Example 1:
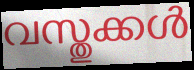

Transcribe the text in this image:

വസ്തുക്കൾ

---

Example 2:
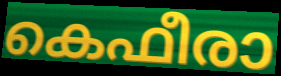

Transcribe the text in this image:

കെഫീരാ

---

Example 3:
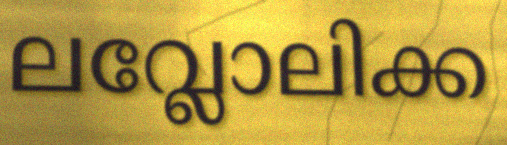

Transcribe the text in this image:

ലവ്ലോലിക്ക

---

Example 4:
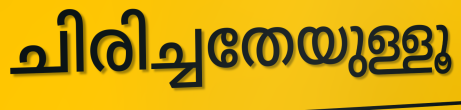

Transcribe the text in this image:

ചിരിച്ചതേയുള്ളൂ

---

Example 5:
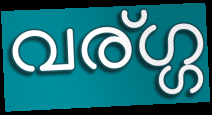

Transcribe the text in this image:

വര്ഗ്ഗ